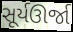
સૂર્યઊર્જા